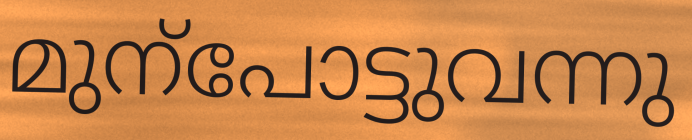
മുന്പോട്ടുവന്നു